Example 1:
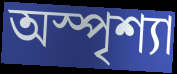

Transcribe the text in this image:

অস্পৃশ্যা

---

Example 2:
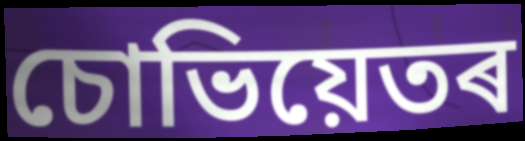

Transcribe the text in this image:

চোভিয়েতৰ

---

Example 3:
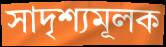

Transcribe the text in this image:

সাদৃশ্যমূলক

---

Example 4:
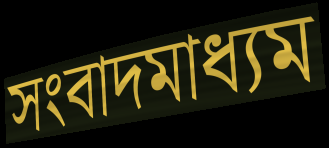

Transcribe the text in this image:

সংবাদমাধ্যম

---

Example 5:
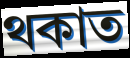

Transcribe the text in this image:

থকাত